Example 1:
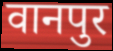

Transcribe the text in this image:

वानपुर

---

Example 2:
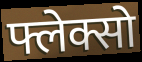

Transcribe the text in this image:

फ्लेक्सो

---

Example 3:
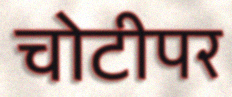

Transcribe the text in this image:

चोटीपर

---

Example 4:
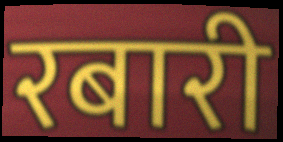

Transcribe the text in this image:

रबारी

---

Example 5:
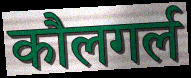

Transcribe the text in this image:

कौलगर्ल